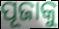
ପୂଜାକୁ